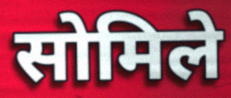
सोमिले